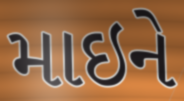
માઇને